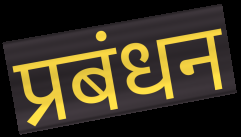
प्रबंधन